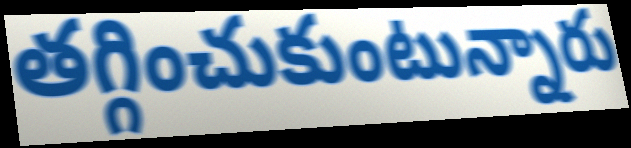
తగ్గించుకుంటున్నారు